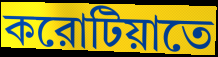
করোটিয়াতে